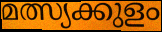
മത്സ്യക്കുളം